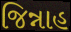
જિન્નાહ